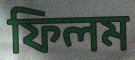
ফিলম